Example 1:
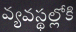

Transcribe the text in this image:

వ్యవస్థల్లోకి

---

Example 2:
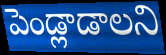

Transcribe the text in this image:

పెండ్లాడాలని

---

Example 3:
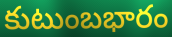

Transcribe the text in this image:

కుటుంబభారం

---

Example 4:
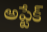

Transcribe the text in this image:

అప్టేక్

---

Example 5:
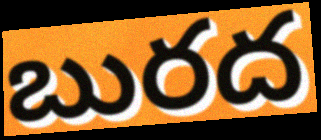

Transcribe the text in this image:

బురద